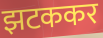
झटककर